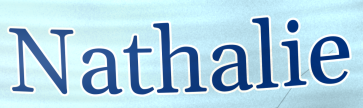
Nathalie